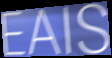
EAIS